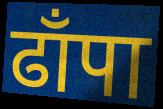
ढाँपा